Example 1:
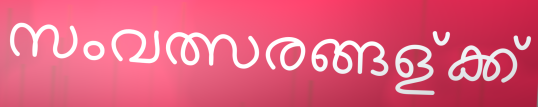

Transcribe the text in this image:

സംവത്സരങ്ങള്ക്ക്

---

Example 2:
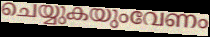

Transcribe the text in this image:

ചെയ്യുകയുംവേണം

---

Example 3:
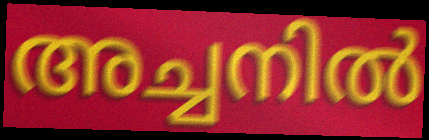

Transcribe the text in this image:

അച്ചനിൽ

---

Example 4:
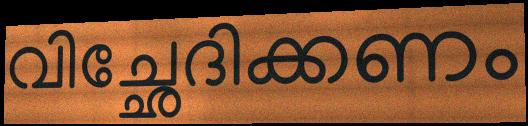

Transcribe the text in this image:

വിച്ഛേദിക്കണം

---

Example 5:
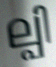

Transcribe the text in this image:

ല്പി